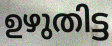
ഉഴുതിട്ട